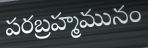
పరబ్రహ్మమునం